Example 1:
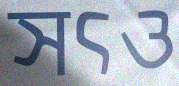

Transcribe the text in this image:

সৎও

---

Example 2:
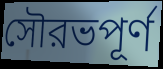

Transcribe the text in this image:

সৌরভপূর্ণ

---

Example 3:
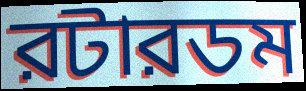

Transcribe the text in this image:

রটারডম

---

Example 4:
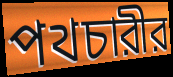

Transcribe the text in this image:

পথচারীর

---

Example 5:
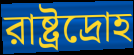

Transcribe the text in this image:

রাষ্ট্রদ্রোহ